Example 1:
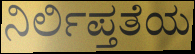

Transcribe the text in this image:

ನಿರ್ಲಿಪ್ತತೆಯ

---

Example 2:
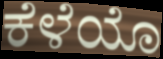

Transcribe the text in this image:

ಕೆಳೆಯೊ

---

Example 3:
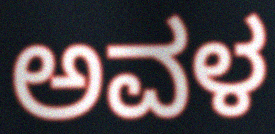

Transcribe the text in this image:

ಅವಳ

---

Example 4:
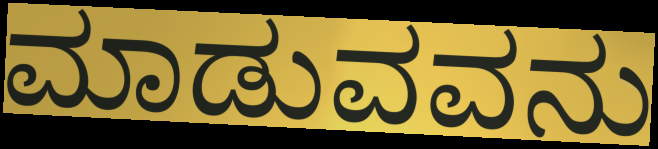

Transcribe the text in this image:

ಮಾಡುವವನು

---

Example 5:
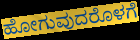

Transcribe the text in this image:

ಹೋಗುವುದರೊಳಗೆ